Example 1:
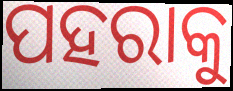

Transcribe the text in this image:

ପହରାକୁ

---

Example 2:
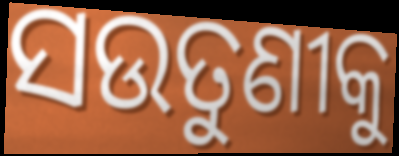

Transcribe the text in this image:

ସଉତୁଣୀକୁ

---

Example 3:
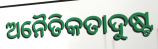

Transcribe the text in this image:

ଅନୈତିକତାଦୁଷ୍ଟ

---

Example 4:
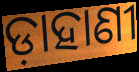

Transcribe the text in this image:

ଡ଼ାହାଣୀ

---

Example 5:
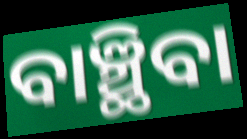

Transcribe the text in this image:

ବାଞ୍ଛିବା